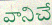
వానిచే